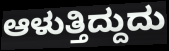
ಆಳುತ್ತಿದ್ದುದು